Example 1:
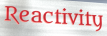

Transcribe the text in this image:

Reactivity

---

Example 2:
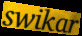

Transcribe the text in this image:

swikar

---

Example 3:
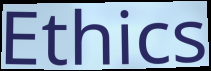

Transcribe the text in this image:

Ethics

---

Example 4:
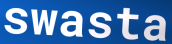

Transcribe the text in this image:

swasta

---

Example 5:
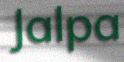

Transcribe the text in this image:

Jalpa